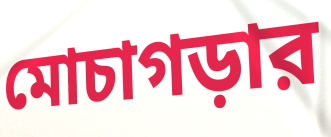
মোচাগড়ার